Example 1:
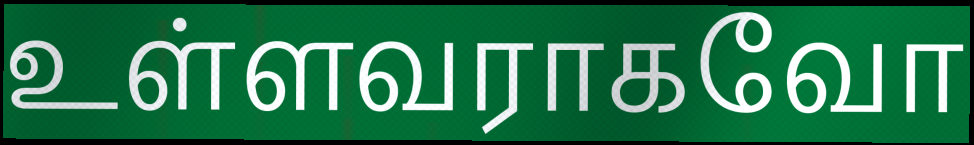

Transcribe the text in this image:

உள்ளவராகவோ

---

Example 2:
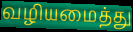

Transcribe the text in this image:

வழியமைத்து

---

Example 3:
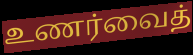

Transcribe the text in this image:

உணர்வைத்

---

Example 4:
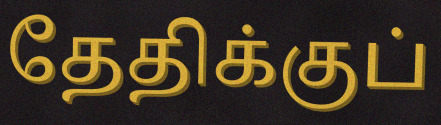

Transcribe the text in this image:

தேதிக்குப்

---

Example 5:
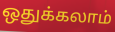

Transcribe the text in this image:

ஒதுக்கலாம்